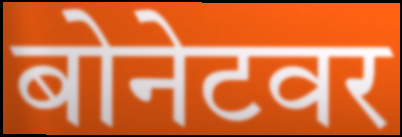
बोनेटवर